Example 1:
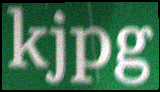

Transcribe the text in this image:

kjpg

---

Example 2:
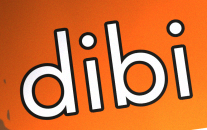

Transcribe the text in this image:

dibi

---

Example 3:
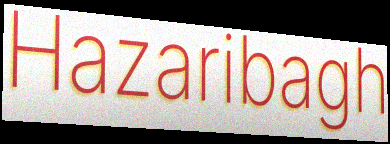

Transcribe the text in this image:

Hazaribagh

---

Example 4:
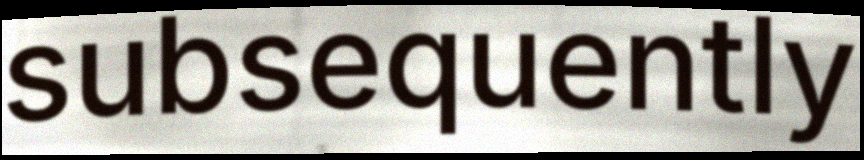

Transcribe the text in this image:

subsequently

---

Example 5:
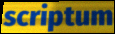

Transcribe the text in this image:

scriptum